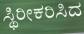
ಸ್ಥಿರೀಕರಿಸಿದ